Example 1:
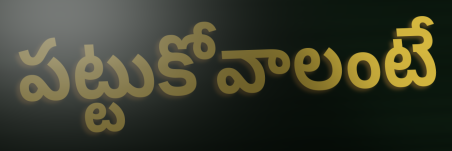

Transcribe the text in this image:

పట్టుకోవాలంటే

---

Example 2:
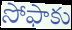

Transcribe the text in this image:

సోఫాకు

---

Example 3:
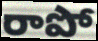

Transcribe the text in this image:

రాపో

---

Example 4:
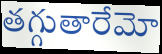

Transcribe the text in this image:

తగ్గుతారేమో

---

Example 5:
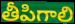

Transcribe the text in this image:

తీపిగాలి